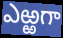
ఎఱ్ఱగా